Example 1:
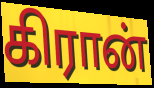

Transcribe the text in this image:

கிரான்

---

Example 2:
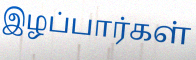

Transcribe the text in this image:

இழப்பார்கள்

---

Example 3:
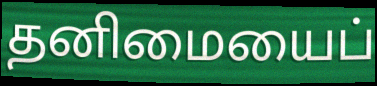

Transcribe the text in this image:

தனிமையைப்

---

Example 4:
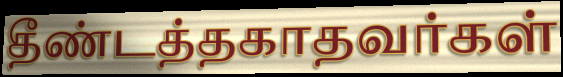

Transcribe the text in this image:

தீண்டத்தகாதவர்கள்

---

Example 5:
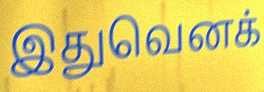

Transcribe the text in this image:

இதுவெனக்